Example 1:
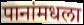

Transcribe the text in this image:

पानांमधला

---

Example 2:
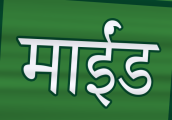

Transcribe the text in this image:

माईंड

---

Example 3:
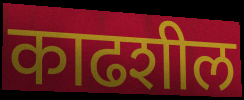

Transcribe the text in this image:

काढशील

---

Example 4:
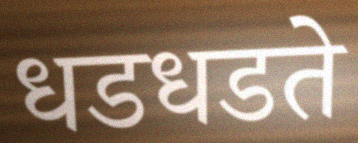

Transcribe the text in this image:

धडधडते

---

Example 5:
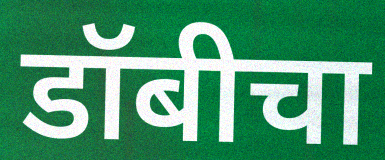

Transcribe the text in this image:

डॉबीचा